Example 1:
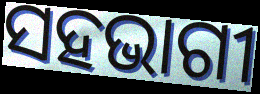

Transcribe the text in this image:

ସହଭାଗୀ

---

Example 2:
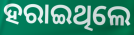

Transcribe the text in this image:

ହରାଇଥିଲେ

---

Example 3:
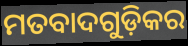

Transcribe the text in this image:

ମତବାଦଗୁଡ଼ିକର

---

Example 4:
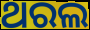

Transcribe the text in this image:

ଥରଲ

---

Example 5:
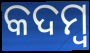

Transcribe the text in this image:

କଦମ୍ୱ